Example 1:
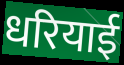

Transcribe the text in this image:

धरियाई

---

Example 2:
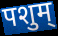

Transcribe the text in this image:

पशुम्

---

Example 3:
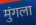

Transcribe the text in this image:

मुंगला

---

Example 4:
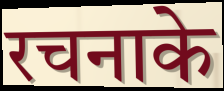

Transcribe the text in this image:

रचनाके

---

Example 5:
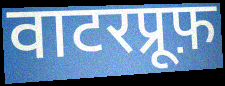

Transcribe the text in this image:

वाटरप्रूफ़